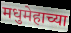
मधुमेहाच्या